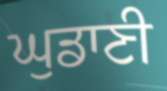
ਘੁਡਾਣੀ